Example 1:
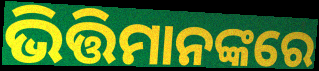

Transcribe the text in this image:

ଭିତ୍ତିମାନଙ୍କରେ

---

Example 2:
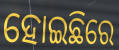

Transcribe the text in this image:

ହୋଇଛିରେ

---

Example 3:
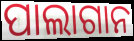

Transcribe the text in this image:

ପାଲାଗାନ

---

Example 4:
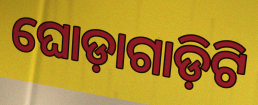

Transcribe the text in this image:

ଘୋଡ଼ାଗାଡ଼ିଟି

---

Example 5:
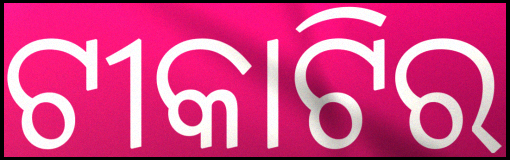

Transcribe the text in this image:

ଟୀକାଟିର